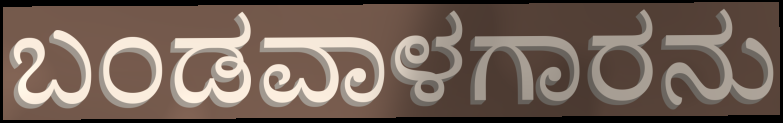
ಬಂಡವಾಳಗಾರನು